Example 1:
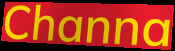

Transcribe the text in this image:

Channa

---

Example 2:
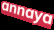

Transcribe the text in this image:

annaya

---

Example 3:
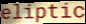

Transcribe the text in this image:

eliptic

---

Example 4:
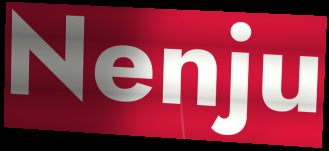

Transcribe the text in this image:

Nenju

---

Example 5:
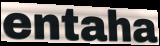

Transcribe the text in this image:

entaha